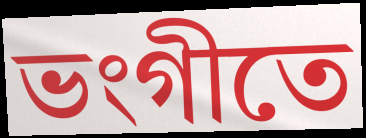
ভংগীতে